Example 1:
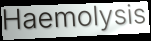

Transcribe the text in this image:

Haemolysis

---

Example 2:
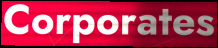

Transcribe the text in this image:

Corporates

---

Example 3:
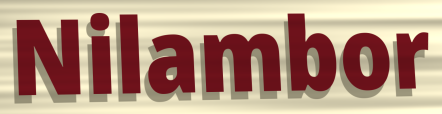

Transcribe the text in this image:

Nilambor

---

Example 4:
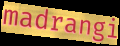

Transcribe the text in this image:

madrangi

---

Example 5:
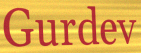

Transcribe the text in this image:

Gurdev